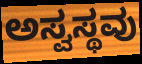
ಅಸ್ವಸ್ಥವು